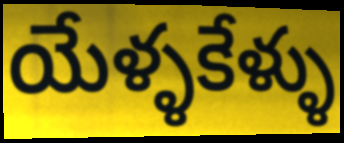
యేళ్ళకేళ్ళు